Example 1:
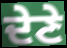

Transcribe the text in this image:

ਦੇਣੇ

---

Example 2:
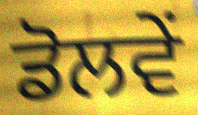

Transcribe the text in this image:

ਡੋਲਵੇਂ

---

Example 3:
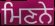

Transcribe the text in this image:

ਮਿਣਨੇ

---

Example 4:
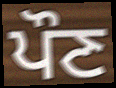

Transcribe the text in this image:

ਪੌਣ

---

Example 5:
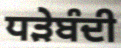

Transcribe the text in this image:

ਧੜੇਬੰਦੀ